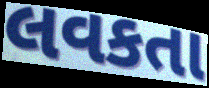
લવકતા